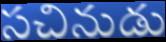
సచినుడు